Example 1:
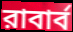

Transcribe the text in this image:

রাবার্ব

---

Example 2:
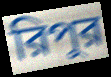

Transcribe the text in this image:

রিপুর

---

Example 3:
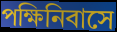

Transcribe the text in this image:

পক্ষিনিবাসে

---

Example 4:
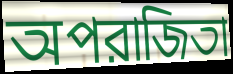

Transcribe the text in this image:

অপরাজিতা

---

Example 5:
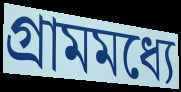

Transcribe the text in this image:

গ্রামমধ্যে